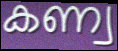
കണ്വ